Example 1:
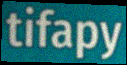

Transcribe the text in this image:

tifapy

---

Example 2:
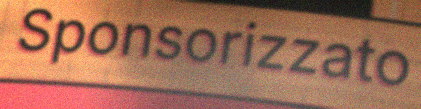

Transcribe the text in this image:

Sponsorizzato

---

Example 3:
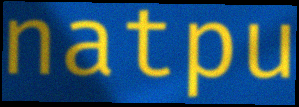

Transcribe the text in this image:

natpu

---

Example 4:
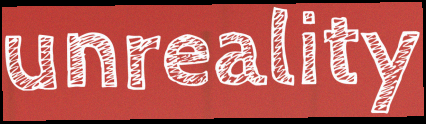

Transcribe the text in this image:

unreality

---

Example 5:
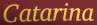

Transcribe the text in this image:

Catarina